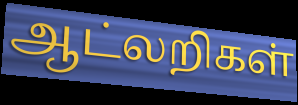
ஆட்லறிகள்